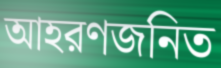
আহরণজনিত